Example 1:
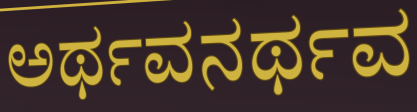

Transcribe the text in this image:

ಅರ್ಥವನರ್ಥವ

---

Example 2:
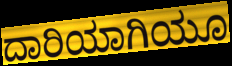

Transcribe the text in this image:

ದಾರಿಯಾಗಿಯೂ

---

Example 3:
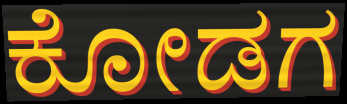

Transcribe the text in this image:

ಕೋಡಗ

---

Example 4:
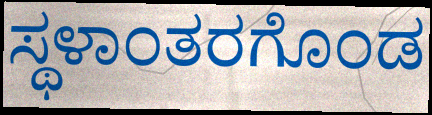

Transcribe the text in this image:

ಸ್ಥಳಾಂತರಗೊಂಡ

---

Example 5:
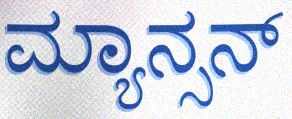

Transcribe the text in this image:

ಮ್ಯಾನ್ಸನ್